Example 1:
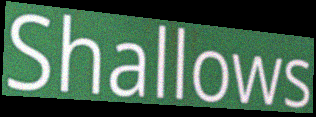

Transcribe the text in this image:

Shallows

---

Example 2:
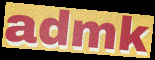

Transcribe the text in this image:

admk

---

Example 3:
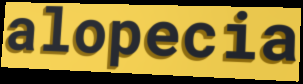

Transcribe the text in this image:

alopecia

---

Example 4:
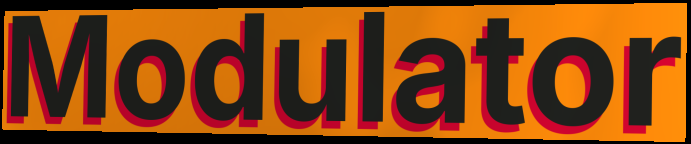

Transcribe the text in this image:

Modulator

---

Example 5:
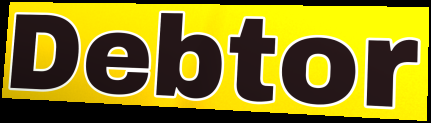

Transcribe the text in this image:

Debtor